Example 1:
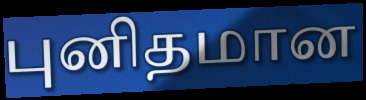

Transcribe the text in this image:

புனிதமான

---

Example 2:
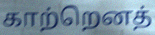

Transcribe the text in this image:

காற்றெனத்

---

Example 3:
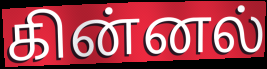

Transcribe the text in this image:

கின்னல்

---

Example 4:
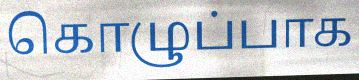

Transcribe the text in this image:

கொழுப்பாக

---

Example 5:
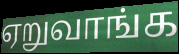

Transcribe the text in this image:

ஏறுவாங்க